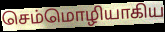
செம்மொழியாகிய